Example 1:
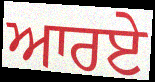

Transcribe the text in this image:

ਆਰਏ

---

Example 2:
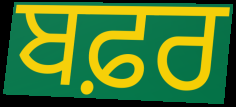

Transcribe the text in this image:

ਬਫ਼ਰ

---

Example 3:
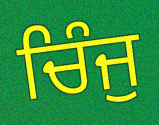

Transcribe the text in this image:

ਚਿੰਜੁ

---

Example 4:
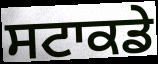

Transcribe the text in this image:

ਸਟਾਕਡੇ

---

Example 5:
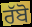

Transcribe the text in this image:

ਰੱਬੋ